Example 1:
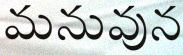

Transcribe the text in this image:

మనువున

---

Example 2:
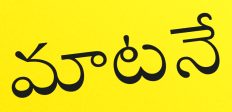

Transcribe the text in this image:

మాటనే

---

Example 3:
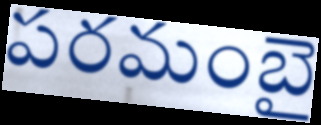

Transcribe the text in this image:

పరమంబై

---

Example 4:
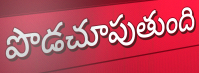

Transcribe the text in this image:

పొడచూపుతుంది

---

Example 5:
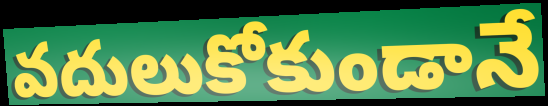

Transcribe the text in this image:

వదులుకోకుండానే